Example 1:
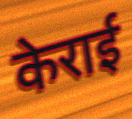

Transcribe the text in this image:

केराई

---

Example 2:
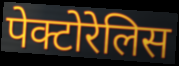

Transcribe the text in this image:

पेक्टोरेलिस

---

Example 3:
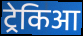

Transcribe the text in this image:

ट्रेकिआ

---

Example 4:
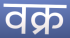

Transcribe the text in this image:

वक्र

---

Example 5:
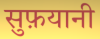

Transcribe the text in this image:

सुफ़यानी